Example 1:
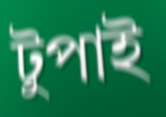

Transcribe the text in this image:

টুপাই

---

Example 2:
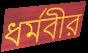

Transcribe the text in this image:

ধর্মবীর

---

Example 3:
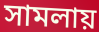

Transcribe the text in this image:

সামলায়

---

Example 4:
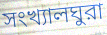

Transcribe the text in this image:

সংখ্যালঘুরা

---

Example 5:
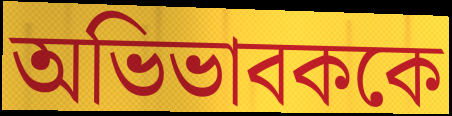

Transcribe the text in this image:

অভিভাবককে